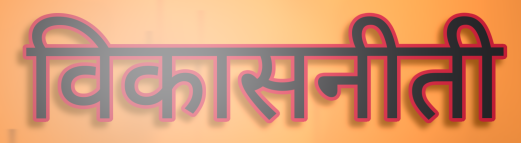
विकासनीती